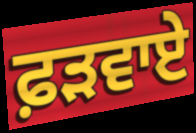
ਫ਼ੜਵਾਏ